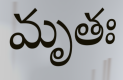
మృతః